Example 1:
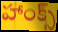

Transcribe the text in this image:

హాంక్స్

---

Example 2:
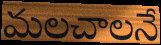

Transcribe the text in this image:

మలచాలనే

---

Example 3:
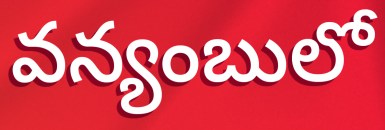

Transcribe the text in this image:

వన్యంబులో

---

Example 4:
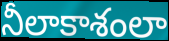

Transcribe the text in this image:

నీలాకాశంలా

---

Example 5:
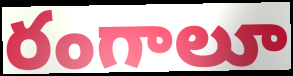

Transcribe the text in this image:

రంగాలూ